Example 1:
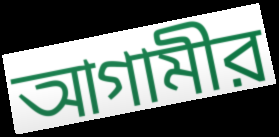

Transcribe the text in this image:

আগামীর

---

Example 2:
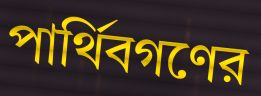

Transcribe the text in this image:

পার্থিবগণের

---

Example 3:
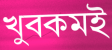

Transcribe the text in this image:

খুবকমই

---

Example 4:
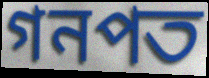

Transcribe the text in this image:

গনপত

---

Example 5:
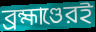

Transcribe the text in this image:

ব্রহ্মাণ্ডেরই